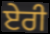
ਏਰੀ